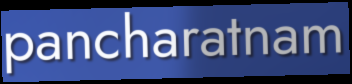
pancharatnam